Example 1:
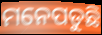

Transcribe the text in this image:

ମନେପଡୁଛି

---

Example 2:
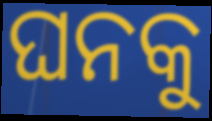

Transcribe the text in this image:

ଘନକୁ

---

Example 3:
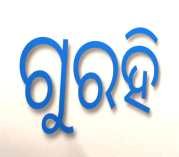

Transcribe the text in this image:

ଗୁରହି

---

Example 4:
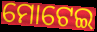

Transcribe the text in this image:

ମୋଟେଇ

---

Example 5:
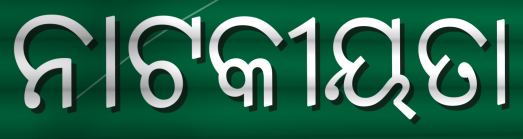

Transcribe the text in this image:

ନାଟକୀୟତା